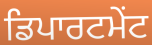
ਡਿਪਾਰਟਮੇਂਟ